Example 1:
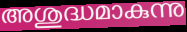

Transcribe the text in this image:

അശുദ്ധമാകുന്നു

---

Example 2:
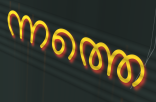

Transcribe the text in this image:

ന്നത്തെ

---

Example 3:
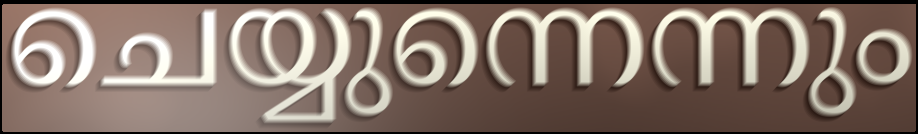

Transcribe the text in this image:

ചെയ്യുന്നെന്നും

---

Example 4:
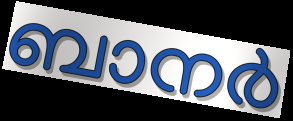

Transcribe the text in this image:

ബാനർ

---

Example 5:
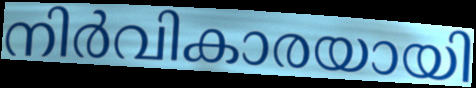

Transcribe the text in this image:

നിർവികാരയായി